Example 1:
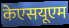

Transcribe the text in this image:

केएसयूएम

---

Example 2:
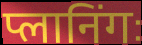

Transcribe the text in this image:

प्लानिंगः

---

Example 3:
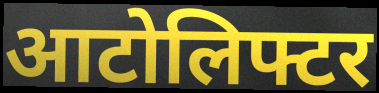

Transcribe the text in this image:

आटोलिफ्टर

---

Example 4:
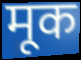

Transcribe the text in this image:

मूक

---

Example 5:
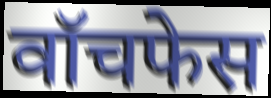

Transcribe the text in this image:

वॉचफेस